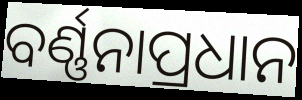
ବର୍ଣ୍ଣନାପ୍ରଧାନ